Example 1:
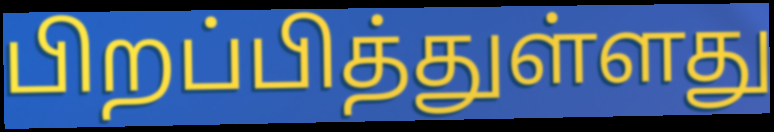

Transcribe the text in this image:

பிறப்பித்துள்ளது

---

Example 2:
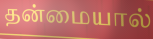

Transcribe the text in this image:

தன்மையால்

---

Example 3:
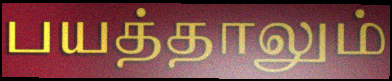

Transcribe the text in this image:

பயத்தாலும்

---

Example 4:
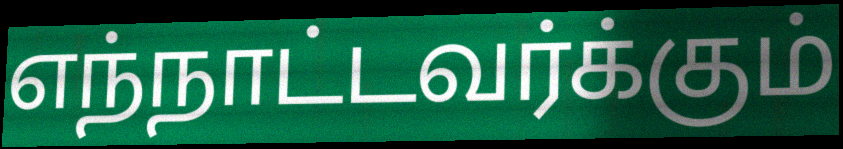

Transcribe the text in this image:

எந்நாட்டவர்க்கும்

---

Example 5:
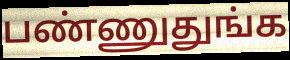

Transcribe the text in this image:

பண்ணுதுங்க